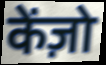
केंज़ो